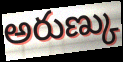
అరుణ్కు